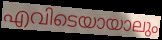
എവിടെയായാലും